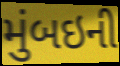
મુંબઇની